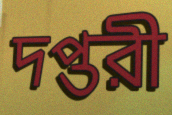
দপ্তরী